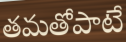
తమతోపాటే